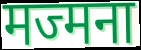
मज्मना